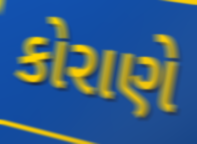
કોરાણે